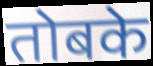
तोबके